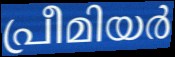
പ്രീമിയർ